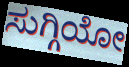
ಸುಗ್ಗಿಯೋ